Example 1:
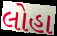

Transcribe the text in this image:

લોહા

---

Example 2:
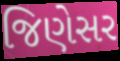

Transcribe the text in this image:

જિણેસર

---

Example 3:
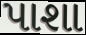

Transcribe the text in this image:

પાશા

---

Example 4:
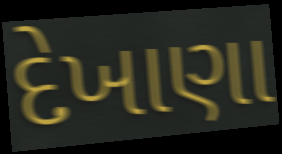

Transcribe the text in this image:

દેખાણા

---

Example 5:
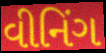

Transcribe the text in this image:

વીનિંગ